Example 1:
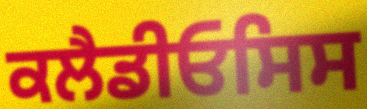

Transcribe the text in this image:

ਕਲੈਡੀਓਸਿਸ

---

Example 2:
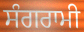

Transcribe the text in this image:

ਸੰਗਰਾਮੀ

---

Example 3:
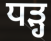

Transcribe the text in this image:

ਧੜ੍ਹ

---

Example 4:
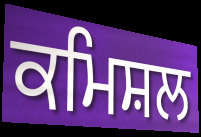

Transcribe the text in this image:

ਕਮਿਸ਼ਲ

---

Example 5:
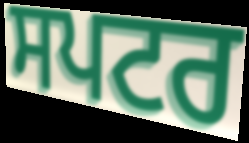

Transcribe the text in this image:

ਸਪਟਰ